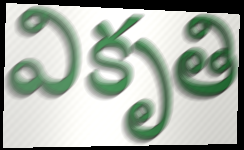
వికృతి